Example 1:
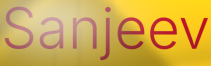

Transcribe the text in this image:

Sanjeev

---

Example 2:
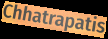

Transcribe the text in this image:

Chhatrapatis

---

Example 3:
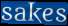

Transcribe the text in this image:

sakes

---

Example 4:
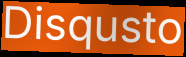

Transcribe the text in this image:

Disqusto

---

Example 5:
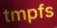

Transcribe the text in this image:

tmpfs